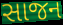
સાજન